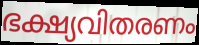
ഭക്ഷ്യവിതരണം